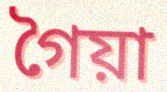
গৈয়া